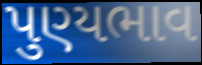
પુણ્યભાવ